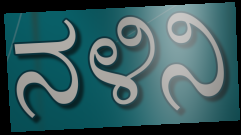
ನಳಿನಿ